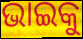
ଭାଇକୁ